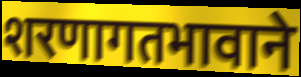
शरणागतभावाने